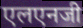
एलएनजी